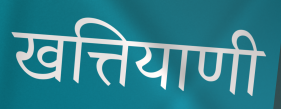
खत्तियाणी